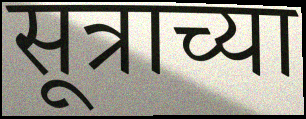
सूत्राच्या